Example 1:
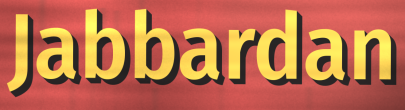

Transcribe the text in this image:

Jabbardan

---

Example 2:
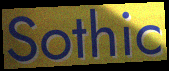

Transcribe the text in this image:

Sothic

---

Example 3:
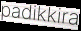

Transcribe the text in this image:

padikkira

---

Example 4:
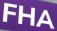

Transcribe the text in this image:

FHA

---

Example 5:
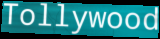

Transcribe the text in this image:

Tollywood